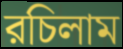
রচিলাম